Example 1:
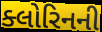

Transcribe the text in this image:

ક્લોરિનની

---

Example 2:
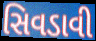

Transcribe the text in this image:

સિવડાવી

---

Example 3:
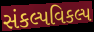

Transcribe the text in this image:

સંકલ્પવિકલ્પ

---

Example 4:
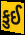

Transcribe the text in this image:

કુઈ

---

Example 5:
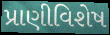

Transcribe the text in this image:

પ્રાણીવિશેષ